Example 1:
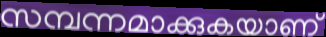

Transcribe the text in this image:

സമ്പന്നമാക്കുകയാണ്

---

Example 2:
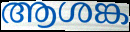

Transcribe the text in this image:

ആശങ്ക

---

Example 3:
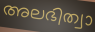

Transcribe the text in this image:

അലഭിത്വാ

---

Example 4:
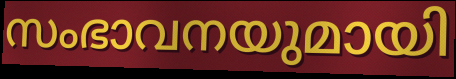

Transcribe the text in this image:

സംഭാവനയുമായി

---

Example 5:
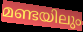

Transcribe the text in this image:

മണ്ടയിലും